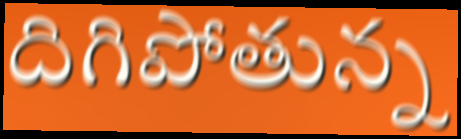
దిగిపోతున్న